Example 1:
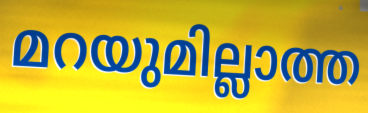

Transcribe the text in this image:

മറയുമില്ലാത്ത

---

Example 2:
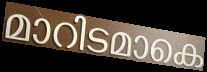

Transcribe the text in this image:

മാറിടമാകെ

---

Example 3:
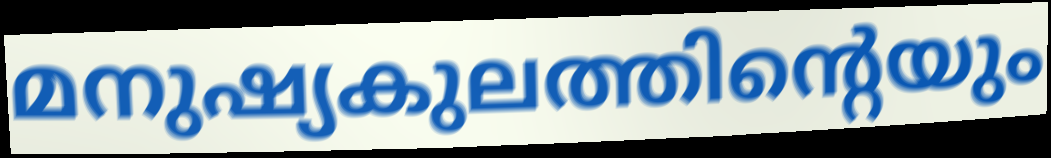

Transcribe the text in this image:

മനുഷ്യകുലത്തിന്റെയും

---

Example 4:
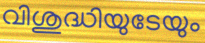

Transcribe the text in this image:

വിശുദ്ധിയുടേയും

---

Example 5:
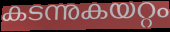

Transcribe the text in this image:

കടന്നുകയറ്റം